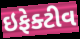
ઇફેક્ટીવ